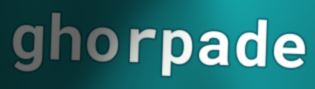
ghorpade